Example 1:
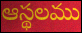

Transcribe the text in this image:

ఆస్థలము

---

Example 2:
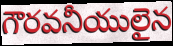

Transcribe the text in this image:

గౌరవనీయులైన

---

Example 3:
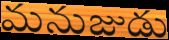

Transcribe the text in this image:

మనుజుడు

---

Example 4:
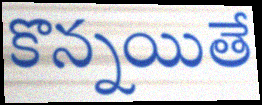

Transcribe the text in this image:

కొన్నయితే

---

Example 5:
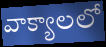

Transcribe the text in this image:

వాక్యాలలో